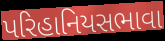
પરિહાનિયસભાવા